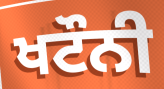
ਖਟੌਨੀ